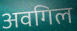
अवगिल